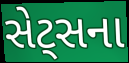
સેટ્સના